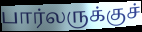
பார்லருக்குச்